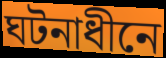
ঘটনাধীনে